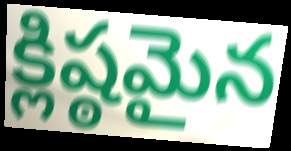
క్లిష్ఠమైన